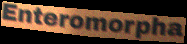
Enteromorpha